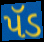
પૅડ